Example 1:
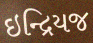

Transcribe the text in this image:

ઇન્દ્રિયજ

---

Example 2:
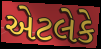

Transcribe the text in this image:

એટલેકે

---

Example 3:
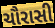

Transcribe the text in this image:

ચૌરાસી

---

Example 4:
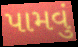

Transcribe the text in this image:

પામવું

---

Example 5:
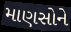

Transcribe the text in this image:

માણસોને